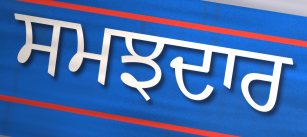
ਸਮਝਦਾਰ